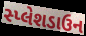
સ્પ્લેશડાઉન